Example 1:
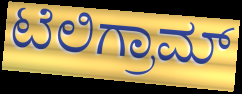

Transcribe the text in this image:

ಟೆಲಿಗ್ರಾಮ್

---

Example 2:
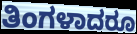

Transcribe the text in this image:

ತಿಂಗಳಾದರೂ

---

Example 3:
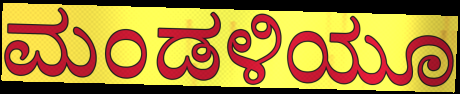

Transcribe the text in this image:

ಮಂಡಳಿಯೂ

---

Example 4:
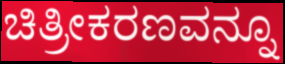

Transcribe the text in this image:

ಚಿತ್ರೀಕರಣವನ್ನೂ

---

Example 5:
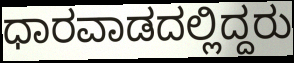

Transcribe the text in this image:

ಧಾರವಾಡದಲ್ಲಿದ್ದರು